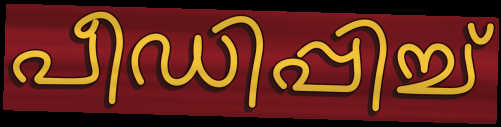
പീഡിപ്പിച്ച്